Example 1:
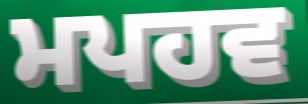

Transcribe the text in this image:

ਮਪਹਵ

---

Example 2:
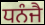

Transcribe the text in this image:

ਧਨੰਜੈ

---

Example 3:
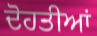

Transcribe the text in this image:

ਦੋਹਤੀਆਂ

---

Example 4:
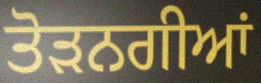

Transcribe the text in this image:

ਤੋੜਨਗੀਆਂ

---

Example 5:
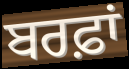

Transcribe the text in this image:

ਬਰਫ਼ਾਂ